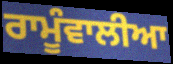
ਰਾਮੂੰਵਾਲੀਆ